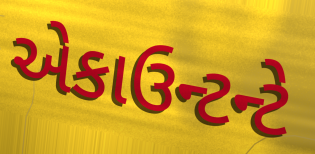
એકાઉન્ટન્ટે